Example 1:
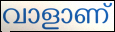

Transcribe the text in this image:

വാളാണ്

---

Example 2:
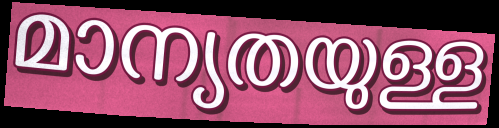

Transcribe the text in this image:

മാന്യതയുള്ള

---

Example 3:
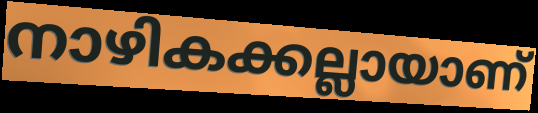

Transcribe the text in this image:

നാഴികക്കല്ലായാണ്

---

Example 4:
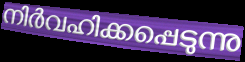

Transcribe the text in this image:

നിർവഹിക്കപ്പെടുന്നു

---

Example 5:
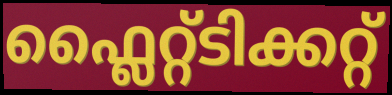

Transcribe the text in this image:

ഫ്ലൈറ്റ്ടിക്കറ്റ്